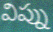
విప్ను